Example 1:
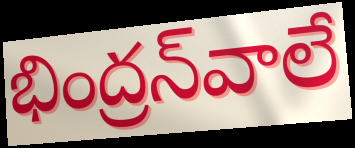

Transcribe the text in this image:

భింద్రన్‌వాలే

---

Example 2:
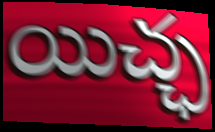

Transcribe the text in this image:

యిచ్ఛ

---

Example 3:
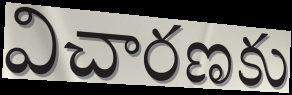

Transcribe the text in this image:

విచారణకు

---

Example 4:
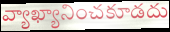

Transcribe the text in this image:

వ్యాఖ్యానించకూడదు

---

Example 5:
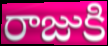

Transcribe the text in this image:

రాజుకి